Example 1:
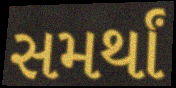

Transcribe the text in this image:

સમર્થાં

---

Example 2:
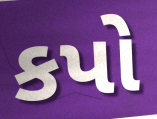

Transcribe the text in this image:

કપો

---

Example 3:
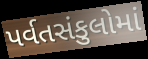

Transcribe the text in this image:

પર્વતસંકુલોમાં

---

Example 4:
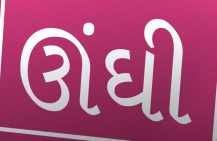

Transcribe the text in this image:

ઊંઘી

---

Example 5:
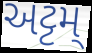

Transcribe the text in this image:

અટ્ટમ્